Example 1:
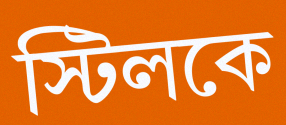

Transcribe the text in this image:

স্টিলকে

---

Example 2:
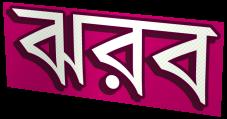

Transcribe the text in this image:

ঝরব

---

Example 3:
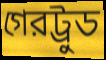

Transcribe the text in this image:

গেরট্রুড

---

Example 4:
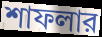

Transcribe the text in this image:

শাফলার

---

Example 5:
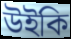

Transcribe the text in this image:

উইকি